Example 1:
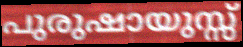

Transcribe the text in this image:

പുരുഷായുസ്സ്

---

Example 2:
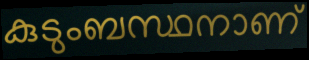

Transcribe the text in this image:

കുടുംബസ്ഥനാണ്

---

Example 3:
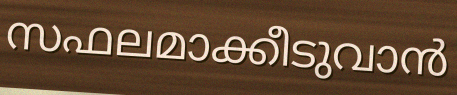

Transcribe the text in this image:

സഫലമാക്കീടുവാൻ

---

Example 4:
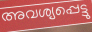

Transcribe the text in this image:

അവശ്യപ്പെട്ടു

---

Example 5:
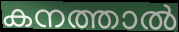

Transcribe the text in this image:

കനത്താൽ